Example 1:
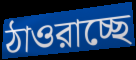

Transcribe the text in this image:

ঠাওরাচ্ছে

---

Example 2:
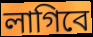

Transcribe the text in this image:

লাগিবে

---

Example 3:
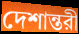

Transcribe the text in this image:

দেশান্তরী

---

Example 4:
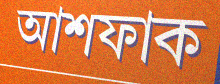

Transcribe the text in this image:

আশফাক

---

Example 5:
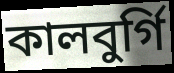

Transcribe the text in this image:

কালবুর্গি